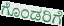
ಗೊಂಡರಿಗೆ